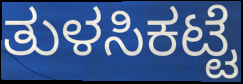
ತುಳಸಿಕಟ್ಟೆ